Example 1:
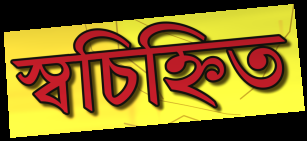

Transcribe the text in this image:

স্বচিহ্নিত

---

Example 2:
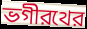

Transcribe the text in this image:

ভগীরথের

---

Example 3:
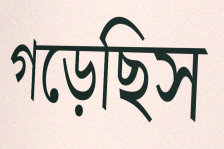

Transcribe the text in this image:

গড়েছিস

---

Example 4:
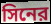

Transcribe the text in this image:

সিনের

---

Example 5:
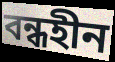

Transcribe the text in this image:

বন্ধহীন